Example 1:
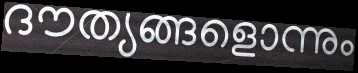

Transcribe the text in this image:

ദൗത്യങ്ങളൊന്നും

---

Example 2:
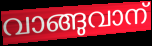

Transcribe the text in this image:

വാങ്ങുവാന്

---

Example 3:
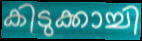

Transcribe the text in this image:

കിടുക്കാച്ചി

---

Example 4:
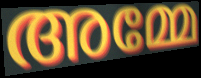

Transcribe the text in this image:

അമ്മേ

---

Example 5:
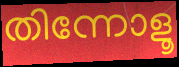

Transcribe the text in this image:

തിന്നോളൂ